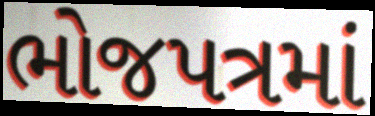
ભોજપત્રમાં